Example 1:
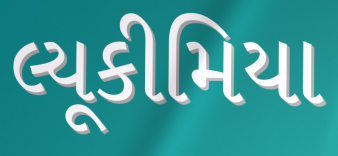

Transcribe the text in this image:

લ્યૂકીમિયા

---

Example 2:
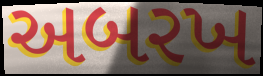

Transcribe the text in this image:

અબરખ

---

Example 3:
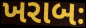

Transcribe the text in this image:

ખરાબઃ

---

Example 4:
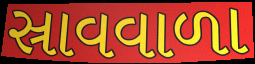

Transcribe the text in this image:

સ્રાવવાળા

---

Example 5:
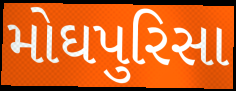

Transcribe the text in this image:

મોઘપુરિસા